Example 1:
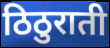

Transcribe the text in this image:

ठिठुराती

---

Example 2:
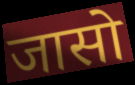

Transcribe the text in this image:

जासो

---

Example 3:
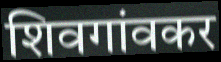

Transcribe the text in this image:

शिवगांवकर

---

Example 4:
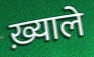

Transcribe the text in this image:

ख़्याले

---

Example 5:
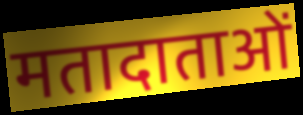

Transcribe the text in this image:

मतादाताओं